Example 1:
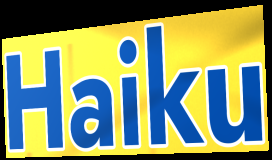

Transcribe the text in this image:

Haiku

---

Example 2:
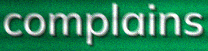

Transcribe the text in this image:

complains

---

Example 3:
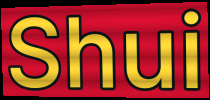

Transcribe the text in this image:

Shui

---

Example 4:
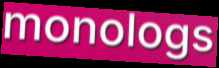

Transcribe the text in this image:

monologs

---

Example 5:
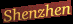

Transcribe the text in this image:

Shenzhen